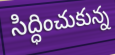
సిద్ధించుకున్న